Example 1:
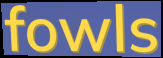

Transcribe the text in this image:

fowls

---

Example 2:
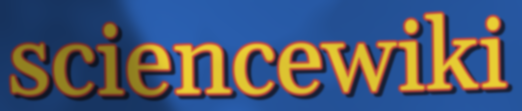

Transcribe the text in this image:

sciencewiki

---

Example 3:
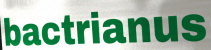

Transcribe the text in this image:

bactrianus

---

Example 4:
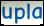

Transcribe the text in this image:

upla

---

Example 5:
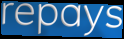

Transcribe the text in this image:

repays